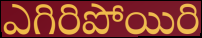
ఎగిరిపోయిరి